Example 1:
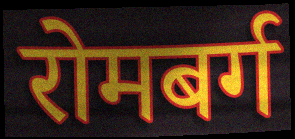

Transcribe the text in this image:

रोमबर्ग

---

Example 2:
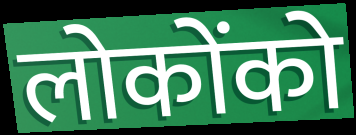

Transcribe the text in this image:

लोकोंको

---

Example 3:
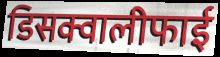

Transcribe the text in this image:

डिसक्वालीफाई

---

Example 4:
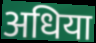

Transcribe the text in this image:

अधिया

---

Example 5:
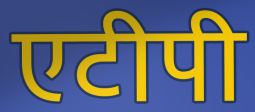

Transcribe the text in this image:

एटीपी